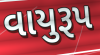
વાયુરૂપ